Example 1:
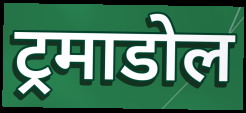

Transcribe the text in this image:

ट्रमाडोल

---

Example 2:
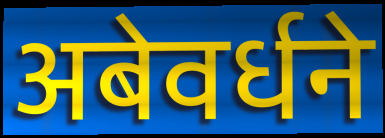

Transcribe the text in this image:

अबेवर्धने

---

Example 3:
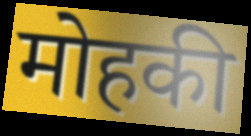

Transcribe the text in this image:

मोहकी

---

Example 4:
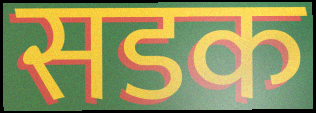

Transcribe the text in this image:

सडक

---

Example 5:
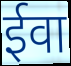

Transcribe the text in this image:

ईवा